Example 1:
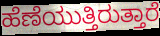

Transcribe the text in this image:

ಹೆಣೆಯುತ್ತಿರುತ್ತಾರೆ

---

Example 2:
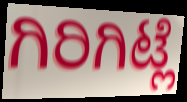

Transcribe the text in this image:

ಗಿರಿಗಿಟ್ಲೆ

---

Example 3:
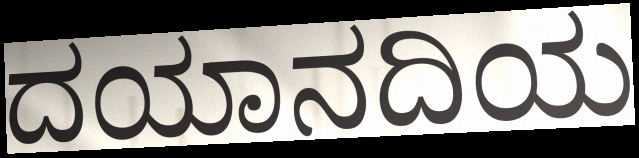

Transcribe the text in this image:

ದಯಾನದಿಯ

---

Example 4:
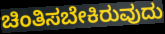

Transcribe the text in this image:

ಚಿಂತಿಸಬೇಕಿರುವುದು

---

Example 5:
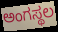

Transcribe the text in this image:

ಅಂಗಸ್ಥಲ